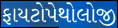
ફાયટોપેથોલોજી